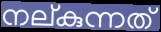
നല്കുന്നത്